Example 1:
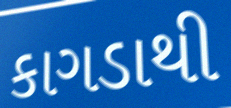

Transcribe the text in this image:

કાગડાથી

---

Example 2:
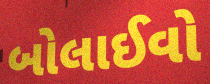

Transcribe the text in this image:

બોલાઈવો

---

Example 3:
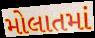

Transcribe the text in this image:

મોલાતમાં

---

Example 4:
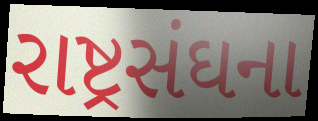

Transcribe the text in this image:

રાષ્ટ્રસંઘના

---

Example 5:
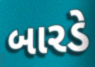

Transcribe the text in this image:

બારડે